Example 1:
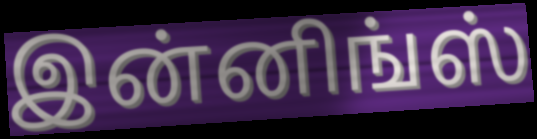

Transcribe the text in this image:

இன்னிங்ஸ்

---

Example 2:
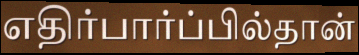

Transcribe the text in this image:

எதிர்பார்ப்பில்தான்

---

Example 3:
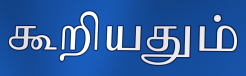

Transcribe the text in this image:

கூறியதும்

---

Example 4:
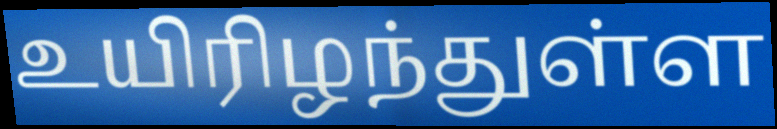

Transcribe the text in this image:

உயிரிழந்துள்ள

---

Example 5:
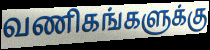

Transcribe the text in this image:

வணிகங்களுக்கு